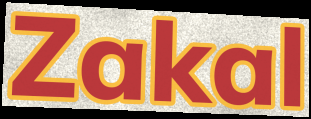
Zakal